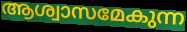
ആശ്വാസമേകുന്ന